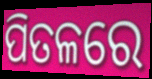
ପିତଳରେ